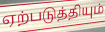
ஏற்படுத்தியும்